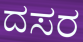
ದಸರ